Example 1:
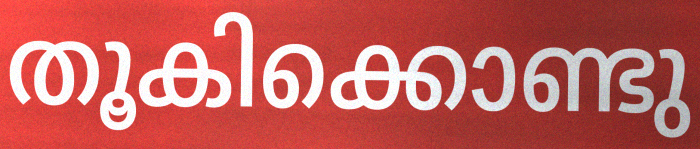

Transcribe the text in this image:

തൂകിക്കൊണ്ടു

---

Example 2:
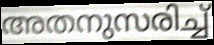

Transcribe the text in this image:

അതനുസരിച്ച്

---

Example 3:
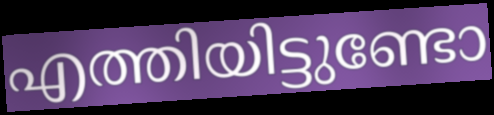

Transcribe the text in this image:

എത്തിയിട്ടുണ്ടോ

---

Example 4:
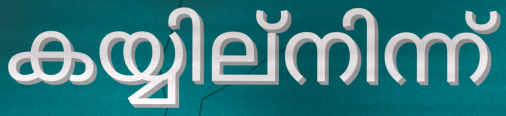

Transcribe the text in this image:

കയ്യില്നിന്ന്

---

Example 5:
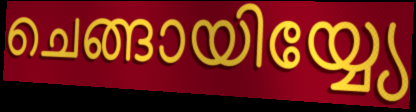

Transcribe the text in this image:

ചെങ്ങായിയ്യ്യേ